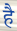
है